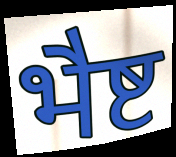
भैष्ट